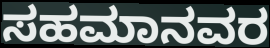
ಸಹಮಾನವರ